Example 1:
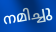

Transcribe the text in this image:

നമിച്ചു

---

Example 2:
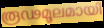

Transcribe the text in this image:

രൂഢമൂലമായി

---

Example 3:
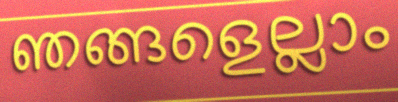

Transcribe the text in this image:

ഞങ്ങളെല്ലാം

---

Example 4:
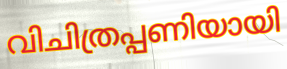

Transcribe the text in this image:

വിചിത്രപ്പണിയായി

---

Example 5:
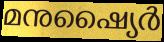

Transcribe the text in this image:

മനുഷ്യൈർ